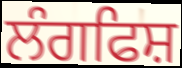
ਲੰਗਫਿਸ਼